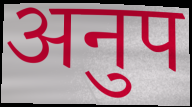
अनुप